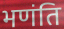
भणंति